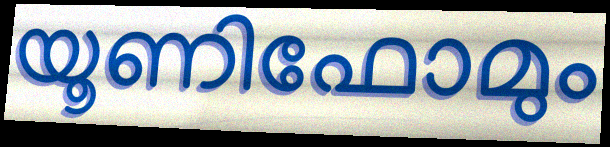
യൂണിഫോമും